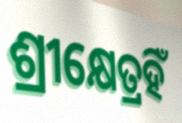
ଶ୍ରୀକ୍ଷେତ୍ରହିଁ